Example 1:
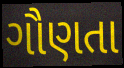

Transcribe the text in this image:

ગૌણતા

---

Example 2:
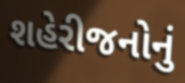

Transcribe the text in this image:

શહેરીજનોનું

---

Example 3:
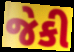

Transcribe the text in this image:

જેકી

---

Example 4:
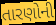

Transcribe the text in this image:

તારણોની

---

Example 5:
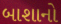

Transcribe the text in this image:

બાશાનો